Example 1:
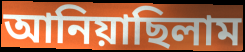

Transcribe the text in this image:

আনিয়াছিলাম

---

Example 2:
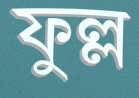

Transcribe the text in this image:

ফুল্ল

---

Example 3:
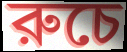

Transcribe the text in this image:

রুচে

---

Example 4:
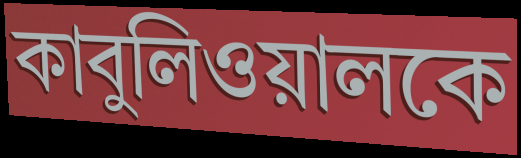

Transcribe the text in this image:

কাবুলিওয়ালকে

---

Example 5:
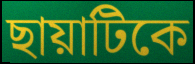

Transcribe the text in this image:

ছায়াটিকে